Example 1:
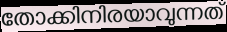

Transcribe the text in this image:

തോക്കിനിരയാവുന്നത്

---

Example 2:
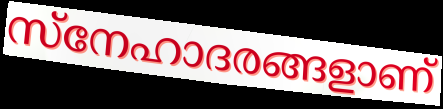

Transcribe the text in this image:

സ്നേഹാദരങ്ങളാണ്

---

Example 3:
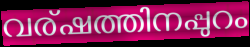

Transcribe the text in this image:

വര്ഷത്തിനപ്പുറം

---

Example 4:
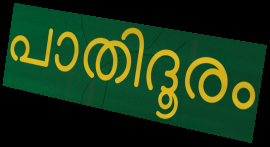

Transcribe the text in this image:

പാതിദൂരം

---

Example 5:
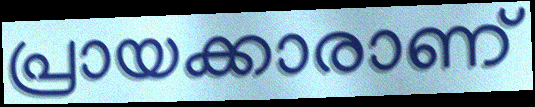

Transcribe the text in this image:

പ്രായക്കാരാണ്